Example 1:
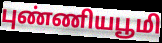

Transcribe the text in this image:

புண்ணியபூமி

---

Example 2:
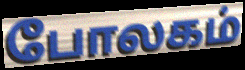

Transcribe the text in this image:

போலகம்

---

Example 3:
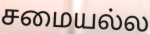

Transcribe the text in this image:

சமையல்ல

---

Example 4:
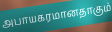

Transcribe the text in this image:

அபாயகரமானதாகும்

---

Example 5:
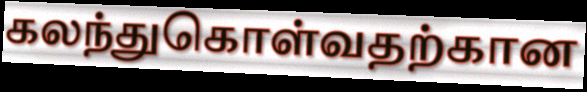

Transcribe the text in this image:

கலந்துகொள்வதற்கான